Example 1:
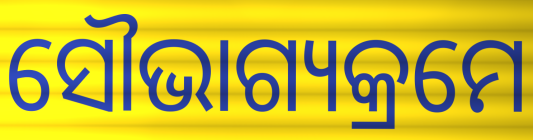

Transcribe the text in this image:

ସୌଭାଗ୍ୟକ୍ରମେ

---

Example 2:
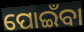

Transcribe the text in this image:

ପୋଇଁବା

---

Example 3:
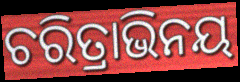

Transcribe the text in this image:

ଚରିତ୍ରାଭିନୟ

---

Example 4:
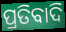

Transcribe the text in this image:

ପ୍ରତିବାଦି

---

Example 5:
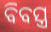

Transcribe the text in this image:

ବିବସ୍ତ୍ର